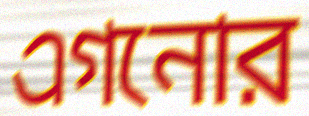
এগনোর